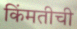
किंमतीची